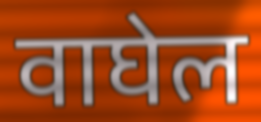
वाघेल